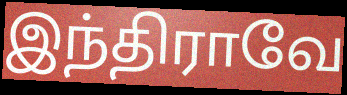
இந்திராவே